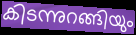
കിടന്നുറങ്ങിയും